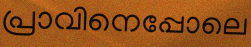
പ്രാവിനെപ്പോലെ